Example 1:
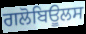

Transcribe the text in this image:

ਗਲੋਬਿਊਲਸ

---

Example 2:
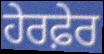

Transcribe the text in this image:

ਹੇਰਫ਼ੇਰ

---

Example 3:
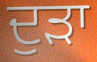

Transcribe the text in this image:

ਦੁੜਾ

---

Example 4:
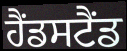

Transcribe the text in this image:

ਹੈਂਡਸਟੈਂਡ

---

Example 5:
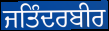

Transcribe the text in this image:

ਜਤਿੰਦਰਬੀਰ